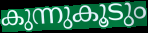
കുന്നുകൂടും